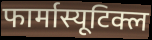
फार्मास्यूटिक्ल